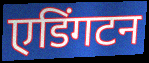
एडिंगटन